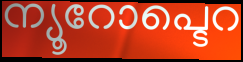
ന്യൂറോപ്ടെറ